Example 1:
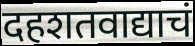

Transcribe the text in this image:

दहशतवाद्याचं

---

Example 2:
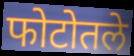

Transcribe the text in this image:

फोटोतले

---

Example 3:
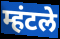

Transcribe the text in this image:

म्हंटले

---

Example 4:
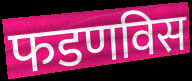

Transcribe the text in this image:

फडणविस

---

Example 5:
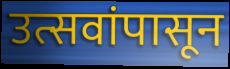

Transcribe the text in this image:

उत्सवांपासून